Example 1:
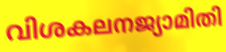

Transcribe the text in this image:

വിശകലനജ്യാമിതി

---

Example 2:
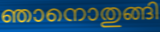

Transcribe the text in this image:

ഞാനൊതുങ്ങി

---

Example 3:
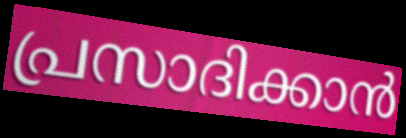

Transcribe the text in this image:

പ്രസാദിക്കാൻ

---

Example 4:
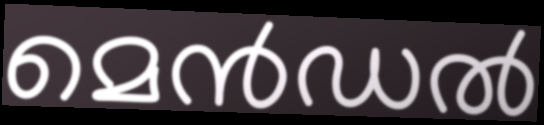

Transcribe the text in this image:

മെൻഡൽ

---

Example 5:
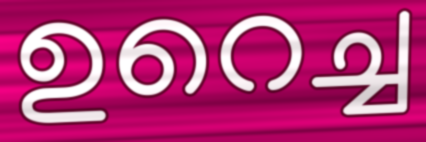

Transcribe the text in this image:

ഉറെച്ച